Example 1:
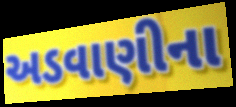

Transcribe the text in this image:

અડવાણીના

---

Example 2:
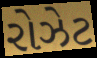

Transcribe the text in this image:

રોઝેટ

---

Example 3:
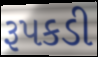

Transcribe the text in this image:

રૂપકડી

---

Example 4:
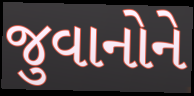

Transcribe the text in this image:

જુવાનોને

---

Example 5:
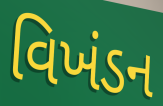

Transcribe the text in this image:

વિખંડન